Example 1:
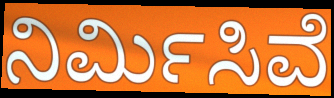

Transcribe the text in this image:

ನಿರ್ಮಿಸಿವೆ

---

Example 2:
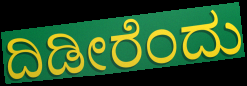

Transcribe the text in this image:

ದಿಡೀರೆಂದು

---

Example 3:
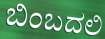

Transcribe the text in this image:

ಬಿಂಬದಲಿ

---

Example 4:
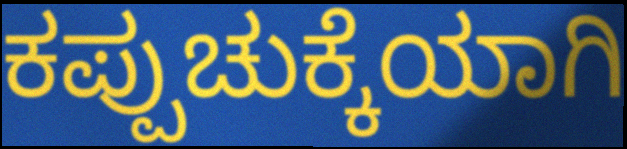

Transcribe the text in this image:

ಕಪ್ಪುಚುಕ್ಕೆಯಾಗಿ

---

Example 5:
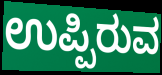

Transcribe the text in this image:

ಉಪ್ಪಿರುವ